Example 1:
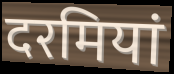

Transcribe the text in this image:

दरमियां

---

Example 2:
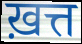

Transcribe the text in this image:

ख़त्त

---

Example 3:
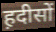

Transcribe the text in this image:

ह़दीसों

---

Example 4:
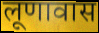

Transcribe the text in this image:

लूणावास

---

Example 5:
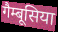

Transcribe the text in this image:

गैम्बूसिया